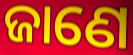
ଜାଣେ